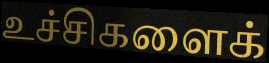
உச்சிகளைக்